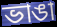
ভাঙা